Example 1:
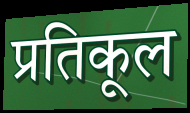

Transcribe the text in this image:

प्रतिकूल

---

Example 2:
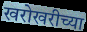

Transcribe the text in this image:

खरोखरीच्या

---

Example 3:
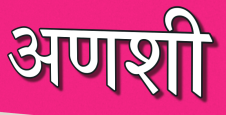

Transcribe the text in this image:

अणशी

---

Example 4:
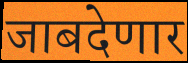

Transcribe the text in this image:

जाबदेणार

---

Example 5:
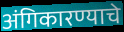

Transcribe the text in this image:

अंगिकारण्याचे